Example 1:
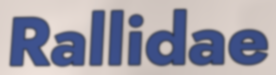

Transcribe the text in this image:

Rallidae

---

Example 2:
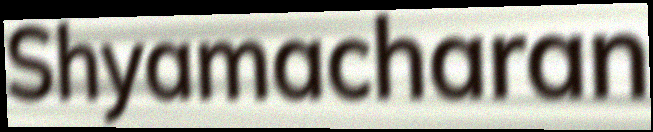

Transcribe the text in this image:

Shyamacharan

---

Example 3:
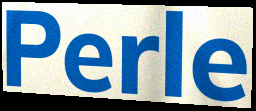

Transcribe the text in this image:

Perle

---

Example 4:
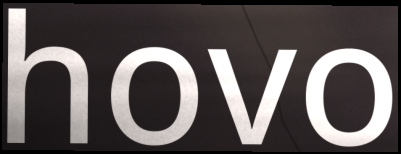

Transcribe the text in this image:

hovo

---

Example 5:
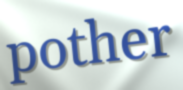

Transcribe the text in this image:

pother